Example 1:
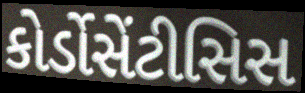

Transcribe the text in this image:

કોર્ડોસેંટીસિસ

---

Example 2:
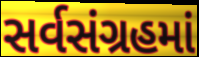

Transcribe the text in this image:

સર્વસંગ્રહમાં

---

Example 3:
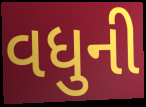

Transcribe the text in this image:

વધુની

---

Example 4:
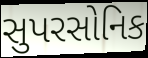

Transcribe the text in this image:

સુપરસોનિક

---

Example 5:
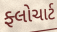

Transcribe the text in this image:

ફ્લોચાર્ટ